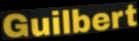
Guilbert